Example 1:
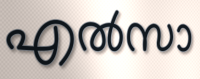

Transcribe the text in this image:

എൽസാ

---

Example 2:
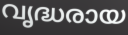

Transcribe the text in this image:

വൃദ്ധരായ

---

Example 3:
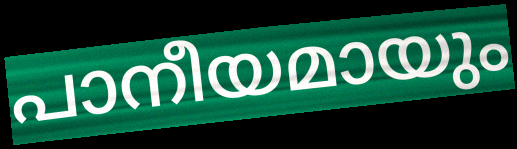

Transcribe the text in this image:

പാനീയമായും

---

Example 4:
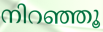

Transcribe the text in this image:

നിറഞ്ഞൂ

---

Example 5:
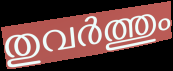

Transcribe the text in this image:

തുവർത്തും